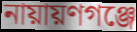
নায়ায়ণগঞ্জে